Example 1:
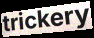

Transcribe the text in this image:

trickery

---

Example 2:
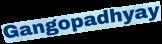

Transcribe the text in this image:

Gangopadhyay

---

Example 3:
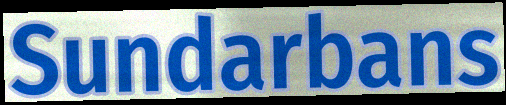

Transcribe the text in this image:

Sundarbans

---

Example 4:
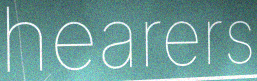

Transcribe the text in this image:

hearers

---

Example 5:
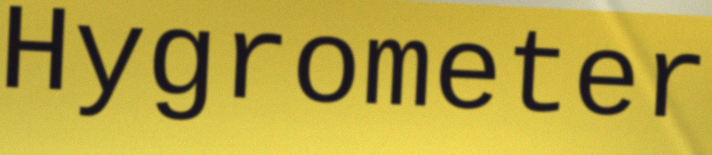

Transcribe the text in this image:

Hygrometer